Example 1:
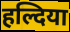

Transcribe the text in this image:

हल्दिया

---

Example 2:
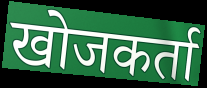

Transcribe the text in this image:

खोजकर्ता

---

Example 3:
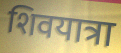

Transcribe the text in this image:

शिवयात्रा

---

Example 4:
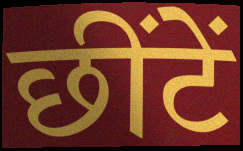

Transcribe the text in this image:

छींटें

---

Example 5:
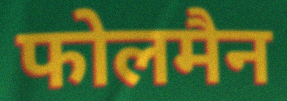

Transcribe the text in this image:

फोलमैन